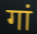
गां